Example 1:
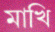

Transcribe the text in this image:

মাখি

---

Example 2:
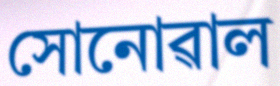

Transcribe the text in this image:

সোনোৱাল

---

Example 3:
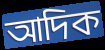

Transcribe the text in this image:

আদিক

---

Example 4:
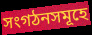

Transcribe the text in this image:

সংগঠনসমূহে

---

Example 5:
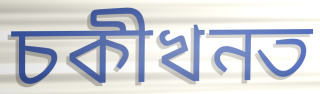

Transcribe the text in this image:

চকীখনত